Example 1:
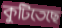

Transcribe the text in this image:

কুটিতেছে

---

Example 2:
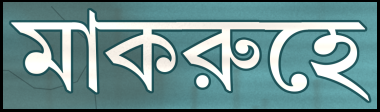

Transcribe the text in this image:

মাকরুহে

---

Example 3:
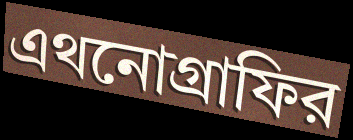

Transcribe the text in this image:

এথনোগ্রাফির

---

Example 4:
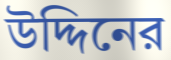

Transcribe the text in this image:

উদ্দিনের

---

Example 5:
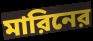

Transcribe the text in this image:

মারিনের